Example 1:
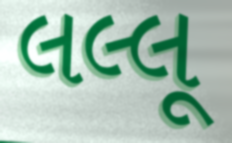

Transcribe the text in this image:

લલ્લૂ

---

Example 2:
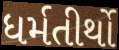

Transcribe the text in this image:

ધર્મતીર્થો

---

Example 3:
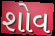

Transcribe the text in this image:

શોવ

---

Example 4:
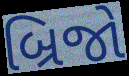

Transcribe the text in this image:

બ્રિજો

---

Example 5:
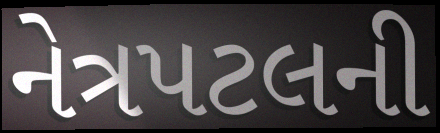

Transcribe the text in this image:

નેત્રપટલની